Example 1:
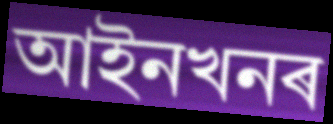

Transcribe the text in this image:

আইনখনৰ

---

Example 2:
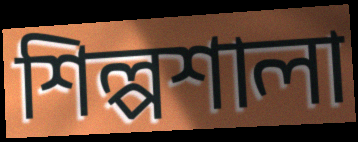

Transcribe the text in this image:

শিল্পশালা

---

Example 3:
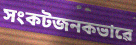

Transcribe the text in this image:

সংকটজনকভাৱে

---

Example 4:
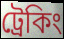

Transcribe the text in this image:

ট্ৰেকিং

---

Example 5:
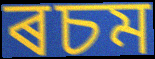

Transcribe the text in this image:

ৰচম